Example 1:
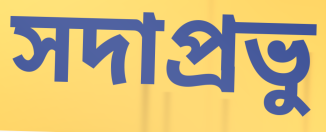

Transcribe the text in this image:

সদাপ্রভু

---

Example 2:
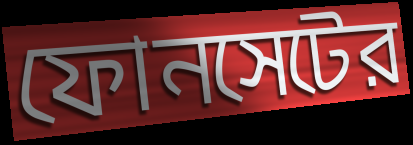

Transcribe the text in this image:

ফোনসেটের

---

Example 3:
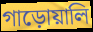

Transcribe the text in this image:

গাড়োয়ালি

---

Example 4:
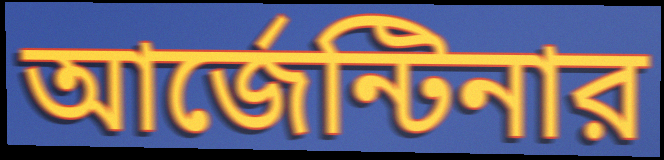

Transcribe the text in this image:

আর্জেন্টিনার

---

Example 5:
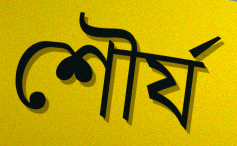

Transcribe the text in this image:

শৌর্য